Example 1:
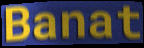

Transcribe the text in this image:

Banat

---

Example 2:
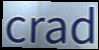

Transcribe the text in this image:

crad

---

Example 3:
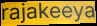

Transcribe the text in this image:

rajakeeya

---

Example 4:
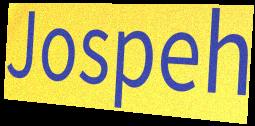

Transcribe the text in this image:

Jospeh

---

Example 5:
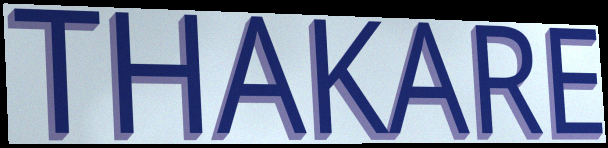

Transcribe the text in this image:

THAKARE